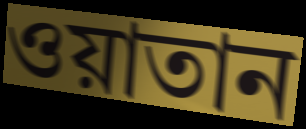
ওয়াতান